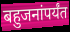
बहुजनांपर्यंत